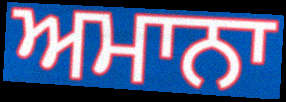
ਅਮਾਨਾ